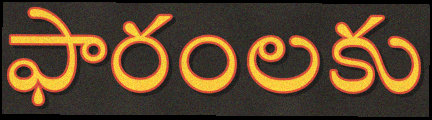
ఫారంలకు